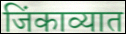
जिंकाव्यात